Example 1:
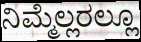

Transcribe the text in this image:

ನಿಮ್ಮೆಲ್ಲರಲ್ಲೂ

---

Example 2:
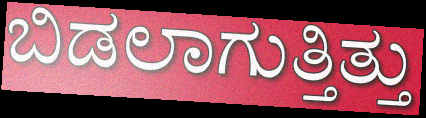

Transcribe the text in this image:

ಬಿಡಲಾಗುತ್ತಿತ್ತು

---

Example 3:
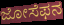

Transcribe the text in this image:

ಜೋಸೆಫನ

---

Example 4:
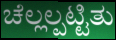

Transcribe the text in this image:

ಚೆಲ್ಲಲ್ಪಟ್ಟಿತು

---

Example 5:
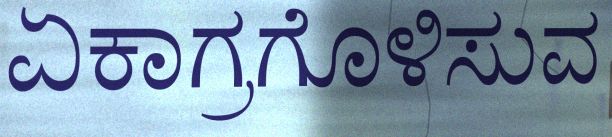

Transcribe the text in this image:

ಏಕಾಗ್ರಗೊಳಿಸುವ